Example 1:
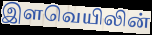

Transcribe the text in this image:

இளவெயிலின்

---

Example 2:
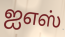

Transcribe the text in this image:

ஐஎஸ்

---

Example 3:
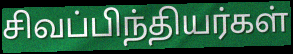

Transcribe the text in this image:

சிவப்பிந்தியர்கள்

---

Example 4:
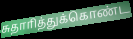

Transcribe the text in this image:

சுதாரித்துக்கொண்ட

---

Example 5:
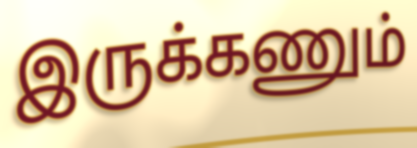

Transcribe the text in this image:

இருக்கணும்